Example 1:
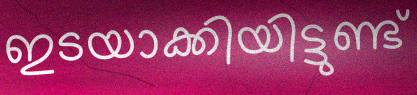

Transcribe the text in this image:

ഇടയാക്കിയിട്ടുണ്ട്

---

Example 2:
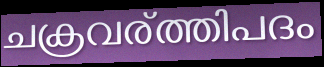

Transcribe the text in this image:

ചക്രവര്ത്തിപദം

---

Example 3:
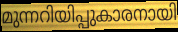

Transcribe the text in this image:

മുന്നറിയിപ്പുകാരനായി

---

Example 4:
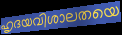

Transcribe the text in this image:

ഹൃദയവിശാലതയെ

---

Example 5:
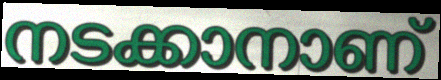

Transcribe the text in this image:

നടക്കാനാണ്